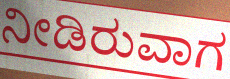
ನೀಡಿರುವಾಗ